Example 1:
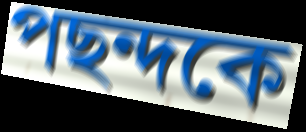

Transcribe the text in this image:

পছন্দকে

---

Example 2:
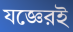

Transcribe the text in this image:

যজ্ঞেরই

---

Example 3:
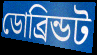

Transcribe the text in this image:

ডোব্রিন্ডট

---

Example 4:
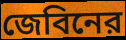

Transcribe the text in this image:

জেবিনের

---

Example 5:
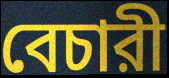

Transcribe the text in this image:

বেচারী